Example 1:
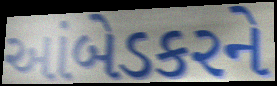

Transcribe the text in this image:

આંબેડકરને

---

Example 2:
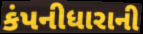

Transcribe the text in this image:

કંપનીધારાની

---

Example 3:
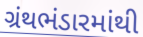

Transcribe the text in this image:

ગ્રંથભંડારમાંથી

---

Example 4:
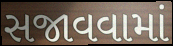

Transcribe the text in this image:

સજાવવામાં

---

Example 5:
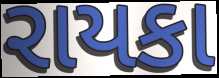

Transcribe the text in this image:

રાયકા